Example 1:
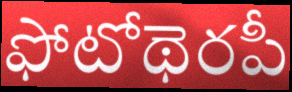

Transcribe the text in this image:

ఫోటోథెరపీ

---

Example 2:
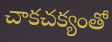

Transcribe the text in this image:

చాకచక్యంతో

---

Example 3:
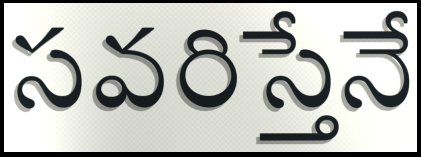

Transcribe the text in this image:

సవరిస్తేనే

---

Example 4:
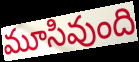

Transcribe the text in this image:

మూసివుంది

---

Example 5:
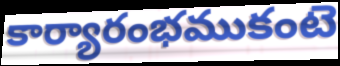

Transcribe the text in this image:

కార్యారంభముకంటె